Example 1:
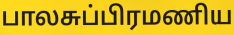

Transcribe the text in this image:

பாலசுப்பிரமணிய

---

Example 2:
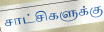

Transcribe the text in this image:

சாட்சிகளுக்கு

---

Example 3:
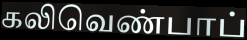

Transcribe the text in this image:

கலிவெண்பாப்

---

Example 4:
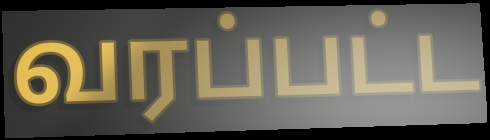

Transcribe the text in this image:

வரப்பட்ட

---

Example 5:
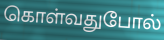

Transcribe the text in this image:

கொள்வதுபோல்